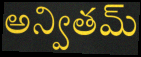
అన్వితమ్